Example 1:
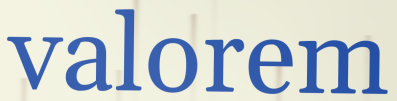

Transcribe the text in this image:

valorem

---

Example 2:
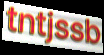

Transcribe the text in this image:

tntjssb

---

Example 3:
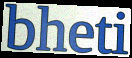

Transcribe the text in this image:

bheti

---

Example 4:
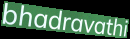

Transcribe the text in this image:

bhadravathi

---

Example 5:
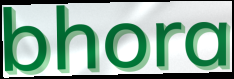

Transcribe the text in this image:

bhora